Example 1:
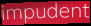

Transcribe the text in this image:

impudent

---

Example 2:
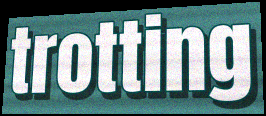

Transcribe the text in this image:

trotting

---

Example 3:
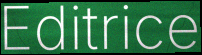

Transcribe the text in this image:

Editrice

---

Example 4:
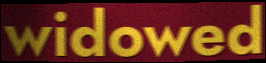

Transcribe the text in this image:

widowed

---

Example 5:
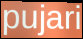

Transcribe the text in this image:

pujari